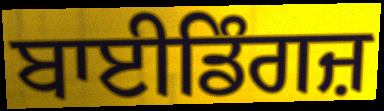
ਬਾਈਡਿੰਗਜ਼